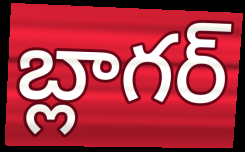
బ్లాగర్